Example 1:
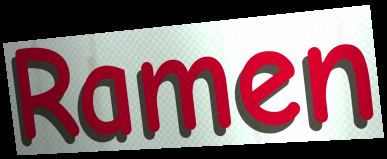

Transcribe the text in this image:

Ramen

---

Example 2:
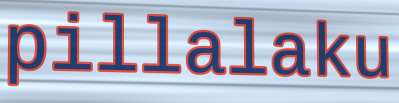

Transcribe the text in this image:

pillalaku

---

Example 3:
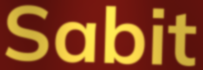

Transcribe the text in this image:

Sabit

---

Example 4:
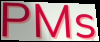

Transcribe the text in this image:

PMs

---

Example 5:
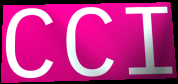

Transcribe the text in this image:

CCI